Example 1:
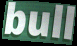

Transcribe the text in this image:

bull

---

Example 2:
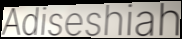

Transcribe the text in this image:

Adiseshiah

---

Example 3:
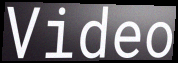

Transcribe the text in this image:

Video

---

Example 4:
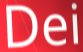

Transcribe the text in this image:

Dei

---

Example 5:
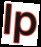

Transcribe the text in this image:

lp